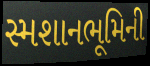
સ્મશાનભૂમિની